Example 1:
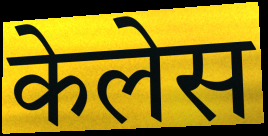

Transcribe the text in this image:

केलेस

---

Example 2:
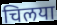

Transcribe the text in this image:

चिलया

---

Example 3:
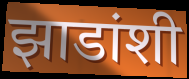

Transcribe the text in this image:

झाडांशी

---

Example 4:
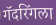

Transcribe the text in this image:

गॅदरिंगला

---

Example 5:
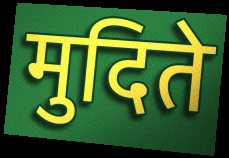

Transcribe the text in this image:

मुदिते